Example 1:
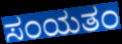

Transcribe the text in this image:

ಸಂಯತಂ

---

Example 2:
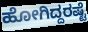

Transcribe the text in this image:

ಹೋಗಿದ್ದರಷ್ಟೆ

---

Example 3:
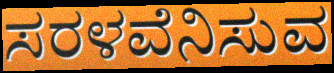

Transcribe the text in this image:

ಸರಳವೆನಿಸುವ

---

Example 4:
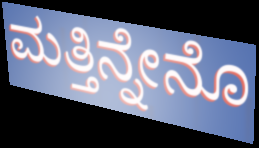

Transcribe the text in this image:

ಮತ್ತಿನ್ನೇನೊ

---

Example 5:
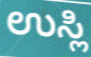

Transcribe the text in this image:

ಉಸ್ಲಿ